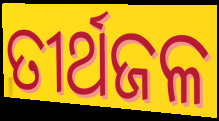
ତୀର୍ଥଜଳ